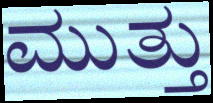
ಮುತ್ತು